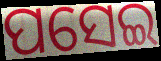
ପସେଇ